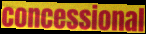
concessional